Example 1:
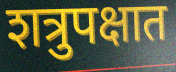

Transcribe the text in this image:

शत्रुपक्षात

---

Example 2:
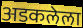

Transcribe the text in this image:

अडकलेला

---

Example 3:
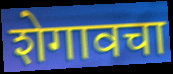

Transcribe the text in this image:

शेगावचा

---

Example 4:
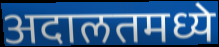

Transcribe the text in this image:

अदालतमध्ये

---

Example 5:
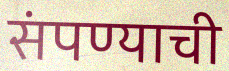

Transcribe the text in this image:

संपण्याची